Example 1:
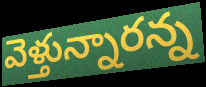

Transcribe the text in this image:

వెళ్తున్నారన్న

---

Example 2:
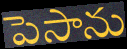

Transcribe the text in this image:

పెసాను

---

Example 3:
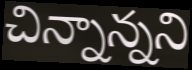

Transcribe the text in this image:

చిన్నాన్నని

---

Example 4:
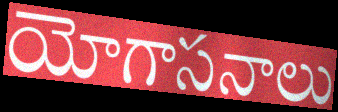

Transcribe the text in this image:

యోగాసనాలు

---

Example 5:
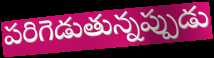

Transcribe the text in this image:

పరిగెడుతున్నప్పుడు